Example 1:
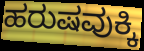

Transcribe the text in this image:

ಹರುಷವುಕ್ಕಿ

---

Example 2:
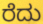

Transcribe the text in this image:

ರೆದು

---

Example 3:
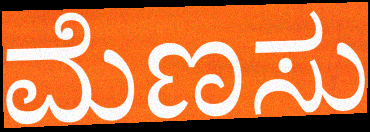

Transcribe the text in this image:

ಮೆಣಸು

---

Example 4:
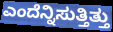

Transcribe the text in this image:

ಎಂದೆನ್ನಿಸುತ್ತಿತ್ತು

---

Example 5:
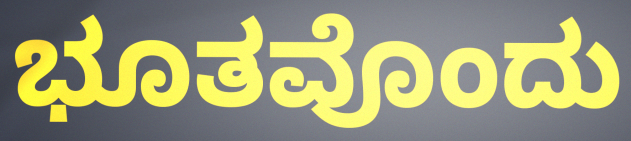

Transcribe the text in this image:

ಭೂತವೊಂದು